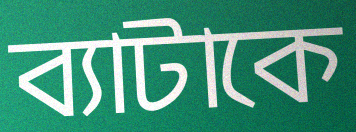
ব্যাটাকে